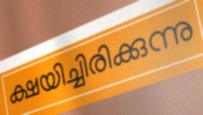
ക്ഷയിച്ചിരിക്കുന്നു